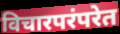
विचारपरंपरेत